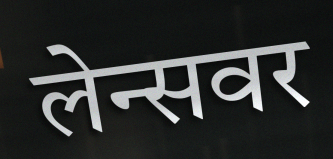
लेन्सवर